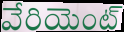
వేరియెంట్